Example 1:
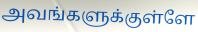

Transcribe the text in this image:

அவங்களுக்குள்ளே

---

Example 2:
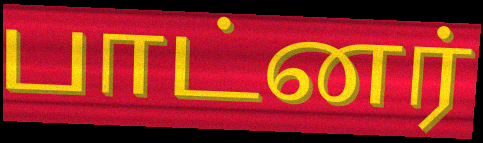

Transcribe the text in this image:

பாட்னர்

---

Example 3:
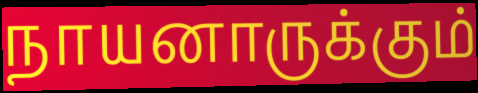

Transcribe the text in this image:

நாயனாருக்கும்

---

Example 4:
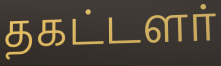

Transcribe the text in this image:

தகட்டளர்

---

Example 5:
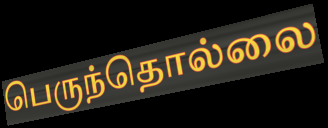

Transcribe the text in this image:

பெருந்தொல்லை